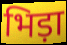
भिड़ा